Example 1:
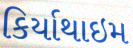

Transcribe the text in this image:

કિર્યાથાઇમ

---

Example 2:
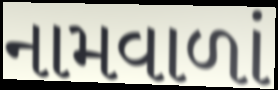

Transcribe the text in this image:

નામવાળાં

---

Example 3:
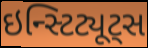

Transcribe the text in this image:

ઇન્સ્ટિટ્યૂટ્સ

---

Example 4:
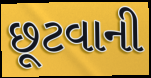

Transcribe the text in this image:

છૂટવાની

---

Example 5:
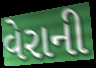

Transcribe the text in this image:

વેરાની